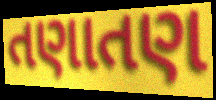
તણાતણ